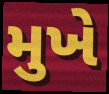
મુખે